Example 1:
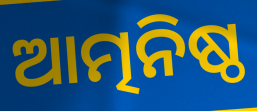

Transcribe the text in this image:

ଆତ୍ମନିଷ୍ଠ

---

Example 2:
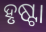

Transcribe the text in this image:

ହୃଷ୍ଟା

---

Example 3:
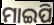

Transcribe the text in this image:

ମାଇପି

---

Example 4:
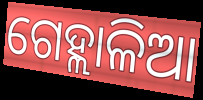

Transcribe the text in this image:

ଗେହ୍ଲାଳିଆ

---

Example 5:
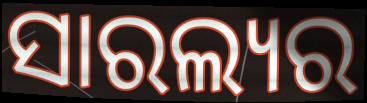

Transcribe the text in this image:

ସାରଲ୍ୟର